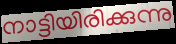
നാട്ടിയിരിക്കുന്നു